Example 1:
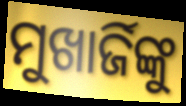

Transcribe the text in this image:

ମୁଖାର୍ଜିଙ୍କୁ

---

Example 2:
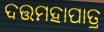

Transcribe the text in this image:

ଦତ୍ତମହାପାତ୍ର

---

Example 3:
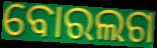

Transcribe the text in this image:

ବୋରଲଗ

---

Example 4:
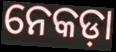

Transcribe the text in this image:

ନେକଡ଼ା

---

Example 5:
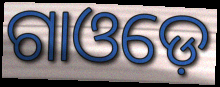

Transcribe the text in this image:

ଗାଓଡ଼େ